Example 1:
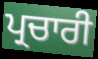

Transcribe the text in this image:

ਪ੍ਰਚਾਰੀ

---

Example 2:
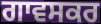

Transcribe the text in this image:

ਗਾਵਸਕਰ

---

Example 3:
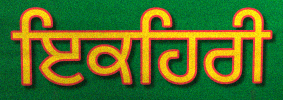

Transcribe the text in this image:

ਇਕਹਿਰੀ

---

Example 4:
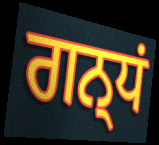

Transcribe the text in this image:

ਗਨ੍ਧਂ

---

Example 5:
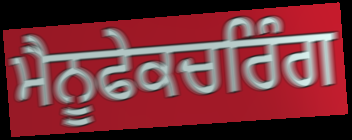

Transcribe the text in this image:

ਮੈਨੂਫੇਕਚਰਿੰਗ